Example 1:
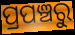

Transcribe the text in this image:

ପ୍ରପଞ୍ଚରୁ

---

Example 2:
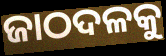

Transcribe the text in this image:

ଜାଠଦଳକୁ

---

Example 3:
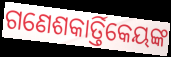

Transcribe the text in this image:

ଗଣେଶକାର୍ତ୍ତିକେୟଙ୍କ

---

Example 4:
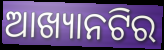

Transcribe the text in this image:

ଆଖ୍ୟାନଟିର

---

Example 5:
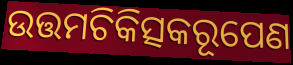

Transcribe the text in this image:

ଉତ୍ତମଚିକିତ୍ସକରୂପେଣ